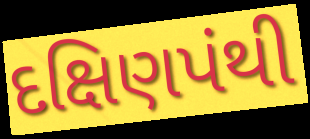
દક્ષિણપંથી